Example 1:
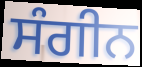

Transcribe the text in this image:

ਸੰਗੀਨ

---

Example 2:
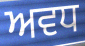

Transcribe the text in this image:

ਅਵਧ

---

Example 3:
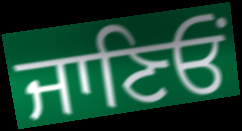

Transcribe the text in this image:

ਜਾਣਿਓਂ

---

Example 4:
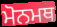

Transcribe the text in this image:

ਮੋਨਮਥ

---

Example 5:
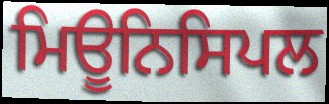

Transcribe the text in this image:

ਮਿਊਨਿਸਿਪਲ